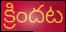
క్రిందట